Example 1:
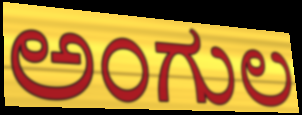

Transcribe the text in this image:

ಅಂಗುಲ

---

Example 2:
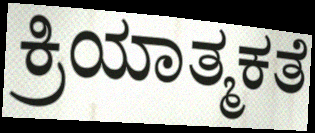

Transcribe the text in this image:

ಕ್ರಿಯಾತ್ಮಕತೆ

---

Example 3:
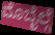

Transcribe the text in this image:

ಮೊಬೈಲ್ಗೆ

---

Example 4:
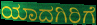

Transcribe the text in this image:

ಯಾದಗಿರಿಗೆ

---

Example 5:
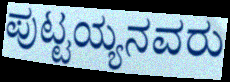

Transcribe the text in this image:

ಪುಟ್ಟಯ್ಯನವರು